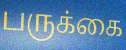
பருக்கை